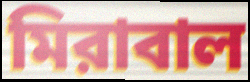
মিরাবাল